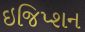
ઇજિપ્શન